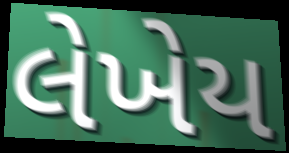
લેખેય